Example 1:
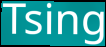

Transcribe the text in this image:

Tsing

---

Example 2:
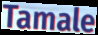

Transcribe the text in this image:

Tamale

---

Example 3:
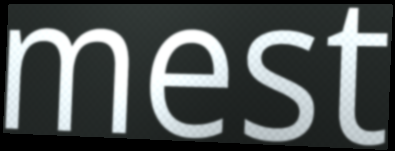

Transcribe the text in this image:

mest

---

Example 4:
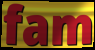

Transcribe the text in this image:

fam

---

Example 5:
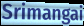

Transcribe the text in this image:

Srimangai